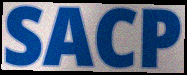
SACP